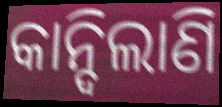
କାନ୍ଦିଲାଣି